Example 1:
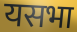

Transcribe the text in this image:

यसभा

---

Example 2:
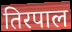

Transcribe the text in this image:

तिरपाल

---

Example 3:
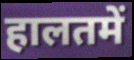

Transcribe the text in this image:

हालतमें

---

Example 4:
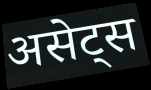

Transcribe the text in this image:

असेट्स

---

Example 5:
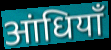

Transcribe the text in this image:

आंधियाँ